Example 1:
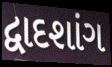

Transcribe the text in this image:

દ્વાદશાંગ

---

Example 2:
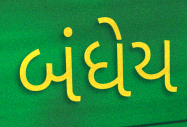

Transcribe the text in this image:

બંધેય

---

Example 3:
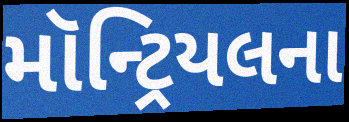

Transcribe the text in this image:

મૉન્ટ્રિયલના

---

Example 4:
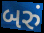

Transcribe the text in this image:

બરું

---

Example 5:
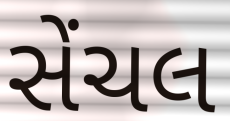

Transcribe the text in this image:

સેંચલ